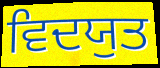
ਵਿਦਯੁਤ